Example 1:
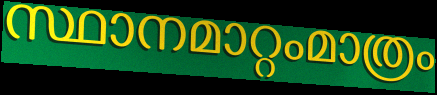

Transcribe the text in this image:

സ്ഥാനമാറ്റംമാത്രം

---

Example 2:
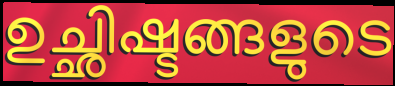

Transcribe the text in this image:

ഉച്ഛിഷ്ടങ്ങളുടെ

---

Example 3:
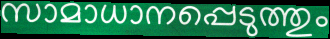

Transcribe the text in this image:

സാമാധാനപ്പെടുത്തും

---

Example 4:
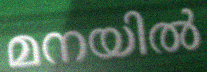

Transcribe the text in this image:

മനയിൽ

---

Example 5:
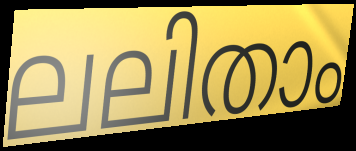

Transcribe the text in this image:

ലലിതാം